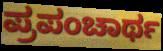
ಪ್ರಪಂಚಾರ್ಥ